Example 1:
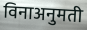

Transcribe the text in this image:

विनाअनुमती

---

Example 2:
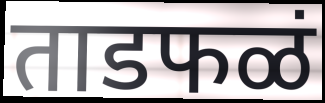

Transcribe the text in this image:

ताडफळं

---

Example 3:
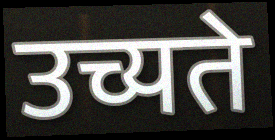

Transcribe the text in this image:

उच्यते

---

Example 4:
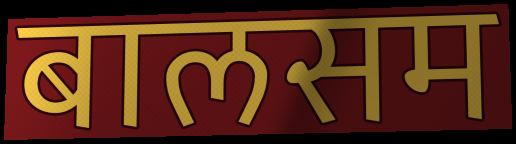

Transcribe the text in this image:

बालसम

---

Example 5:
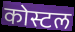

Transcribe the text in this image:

कोस्टल